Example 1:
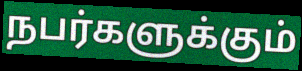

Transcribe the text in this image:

நபர்களுக்கும்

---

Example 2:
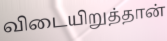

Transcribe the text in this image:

விடையிறுத்தான்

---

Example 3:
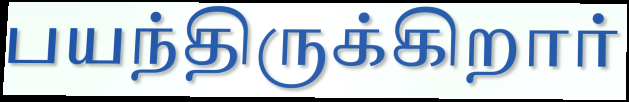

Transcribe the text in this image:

பயந்திருக்கிறார்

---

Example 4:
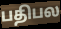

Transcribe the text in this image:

பதிபல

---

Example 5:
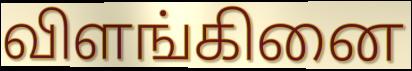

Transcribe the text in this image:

விளங்கினை